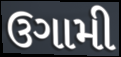
ઉગામી